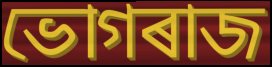
ভোগৰাজ